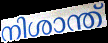
നിശാന്ത്